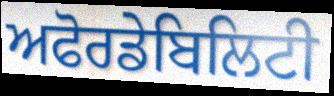
ਅਫੋਰਡੇਬਿਲਿਟੀ